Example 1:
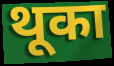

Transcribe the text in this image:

थूका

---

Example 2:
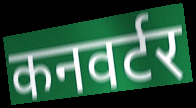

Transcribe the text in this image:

कनवर्टर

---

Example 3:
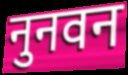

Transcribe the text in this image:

नुनवन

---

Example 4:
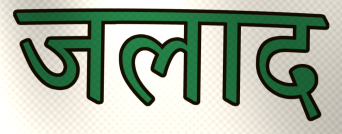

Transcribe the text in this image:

जलाद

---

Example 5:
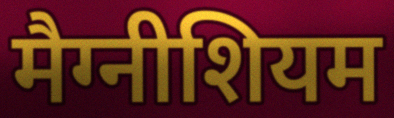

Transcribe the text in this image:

मैग्नीशियम